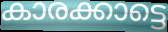
കാരക്കാട്ടെ